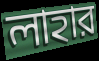
লাহার